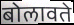
बोलावते